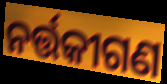
ନର୍ତ୍ତକୀଗଣ